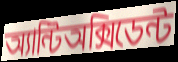
অ্যান্টিঅক্সিডেন্ট